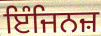
ਇੰਜਿਨਜ਼